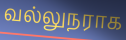
வல்லுநராக